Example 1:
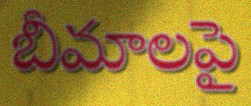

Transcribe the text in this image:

బీమాలపై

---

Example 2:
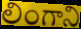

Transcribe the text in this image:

లింగాని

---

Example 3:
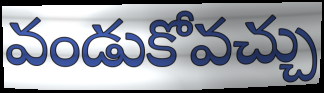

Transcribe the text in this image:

వండుకోవచ్చు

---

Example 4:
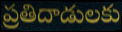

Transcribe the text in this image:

ప్రతిదాడులకు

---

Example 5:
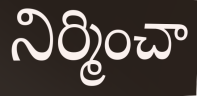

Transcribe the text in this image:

నిర్మించా